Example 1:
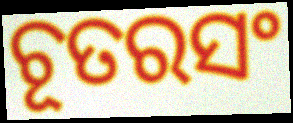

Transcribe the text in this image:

ଚୂତରସଂ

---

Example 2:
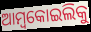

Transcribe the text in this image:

ଆମ୍ବକୋଇଲିକୁ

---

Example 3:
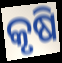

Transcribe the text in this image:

କୃଷି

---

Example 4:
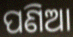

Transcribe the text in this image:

ପଣିଆ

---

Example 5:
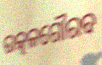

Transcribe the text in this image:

ଉତ୍କଳଗୌରବ